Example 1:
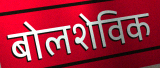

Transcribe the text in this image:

बोलशेविक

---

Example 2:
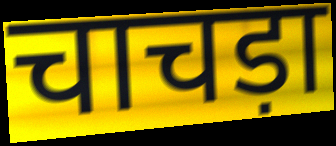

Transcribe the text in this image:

चाचड़ा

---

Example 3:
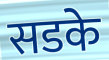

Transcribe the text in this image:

सडके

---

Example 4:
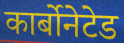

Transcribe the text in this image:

कार्बोनेटेड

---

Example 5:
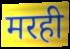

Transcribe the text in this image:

मरही